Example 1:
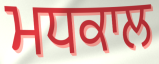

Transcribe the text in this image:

ਮਧਕਾਲ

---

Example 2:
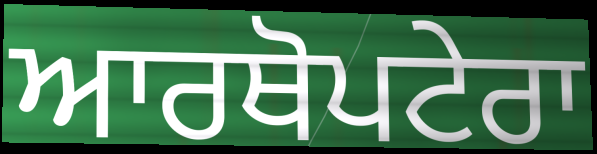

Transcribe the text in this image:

ਆਰਥੋਪਟੇਰਾ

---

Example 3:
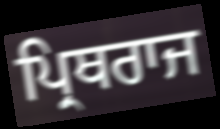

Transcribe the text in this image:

ਪ੍ਰਿਥਰਾਜ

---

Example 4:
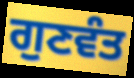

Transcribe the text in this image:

ਗੁਣਵੰਤ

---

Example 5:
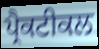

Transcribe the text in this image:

ਪ੍ਰੈਕਟੀਕਲ